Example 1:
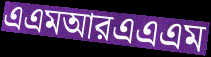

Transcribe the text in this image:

এএমআরএএএম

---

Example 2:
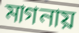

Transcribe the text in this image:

মাগনায়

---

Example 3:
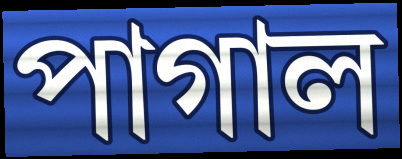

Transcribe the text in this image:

পাগাল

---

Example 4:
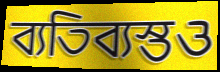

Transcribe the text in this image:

ব্যতিব্যস্তও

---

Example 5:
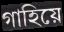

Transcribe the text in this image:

গাহিয়ে